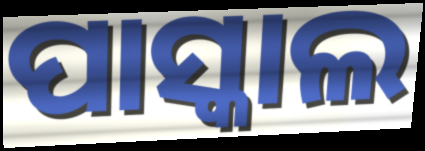
ପାସ୍କାଲ